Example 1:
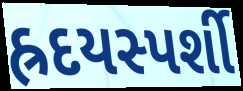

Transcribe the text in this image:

હ્રદયસ્પર્શી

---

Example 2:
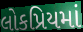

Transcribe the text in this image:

લોકપ્રિયમાં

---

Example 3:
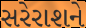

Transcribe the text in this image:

સરેરાશને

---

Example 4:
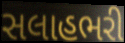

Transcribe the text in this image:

સલાહભરી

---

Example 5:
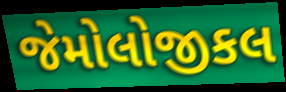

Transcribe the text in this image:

જેમોલોજીકલ